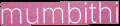
mumbithi